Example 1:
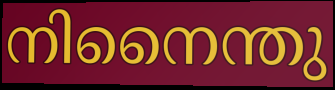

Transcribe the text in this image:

നിനൈന്തു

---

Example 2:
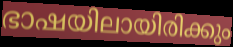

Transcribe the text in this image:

ഭാഷയിലായിരിക്കും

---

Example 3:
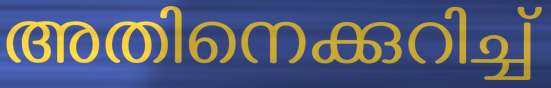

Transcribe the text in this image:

അതിനെക്കുറിച്ച്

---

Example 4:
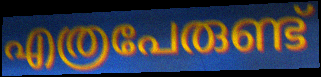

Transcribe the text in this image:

എത്രപേരുണ്ട്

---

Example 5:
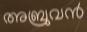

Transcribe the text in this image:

അബ്രുവൻ